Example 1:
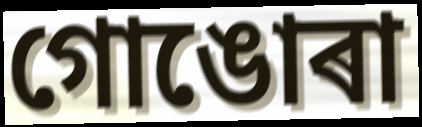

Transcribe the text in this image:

গোঙোৰা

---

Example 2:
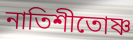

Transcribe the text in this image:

নাতিশীতোষ্ণ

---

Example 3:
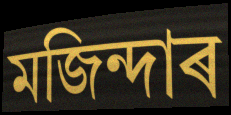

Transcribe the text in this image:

মজিন্দাৰ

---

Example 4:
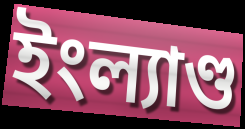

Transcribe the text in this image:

ইংল্যাণ্ড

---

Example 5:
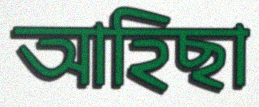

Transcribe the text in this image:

আহিছা